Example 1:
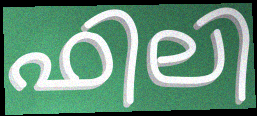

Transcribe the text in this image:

ഫിലി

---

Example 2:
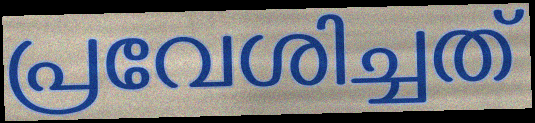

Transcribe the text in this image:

പ്രവേശിച്ചത്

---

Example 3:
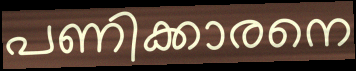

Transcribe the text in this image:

പണിക്കാരനെ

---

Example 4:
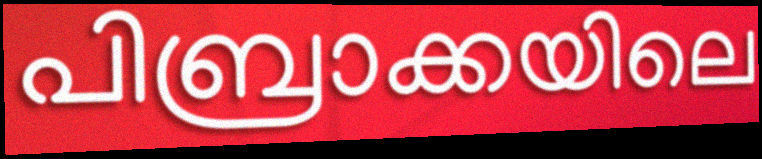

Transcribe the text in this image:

പിബ്രാക്കയിലെ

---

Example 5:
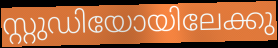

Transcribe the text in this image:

സ്റ്റുഡിയോയിലേക്കു